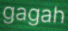
gagah